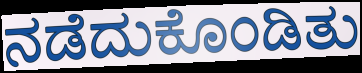
ನಡೆದುಕೊಂಡಿತು